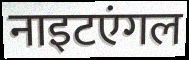
नाइटएंगल